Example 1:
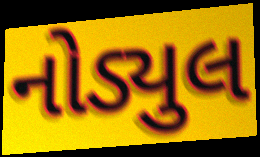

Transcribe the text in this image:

નોડ્યુલ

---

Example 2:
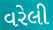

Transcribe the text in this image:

વરેલી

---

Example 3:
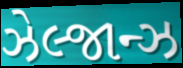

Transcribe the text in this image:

ઝેલ્જાન્ઝ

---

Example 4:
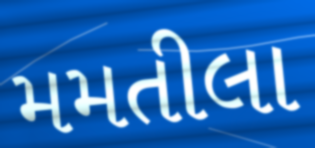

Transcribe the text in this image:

મમતીલા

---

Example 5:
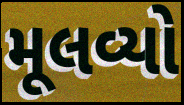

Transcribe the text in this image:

મૂલવ્યો